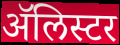
ॲलिस्टर